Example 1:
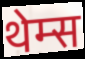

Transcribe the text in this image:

थेम्स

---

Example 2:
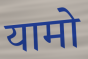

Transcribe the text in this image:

यामो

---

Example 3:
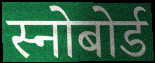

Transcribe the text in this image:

स्नोबोर्ड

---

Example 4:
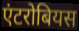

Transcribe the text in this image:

एंटरोबियस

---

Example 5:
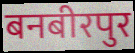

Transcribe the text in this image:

बनबीरपुर